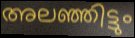
അലഞ്ഞിട്ടും